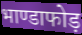
भाण्डाफोड़